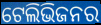
ଟେଲିଭିଜନର